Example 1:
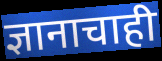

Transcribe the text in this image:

ज्ञानाचाही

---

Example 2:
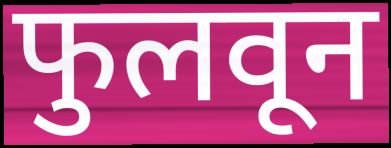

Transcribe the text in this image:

फुलवून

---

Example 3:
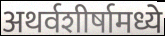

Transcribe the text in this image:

अथर्वशीर्षामध्ये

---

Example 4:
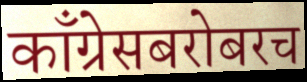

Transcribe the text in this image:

काँग्रेसबरोबरच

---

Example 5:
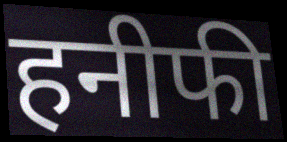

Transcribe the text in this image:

हनीफी